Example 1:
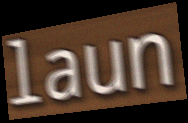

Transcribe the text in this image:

laun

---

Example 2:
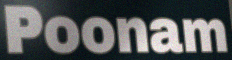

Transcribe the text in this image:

Poonam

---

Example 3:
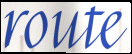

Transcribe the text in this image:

route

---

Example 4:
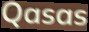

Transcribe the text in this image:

Qasas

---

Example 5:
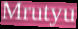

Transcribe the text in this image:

Mrutyu